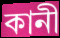
কানী